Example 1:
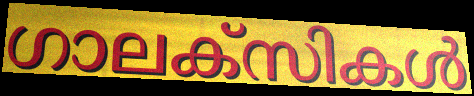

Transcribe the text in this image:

ഗാലക്സികൾ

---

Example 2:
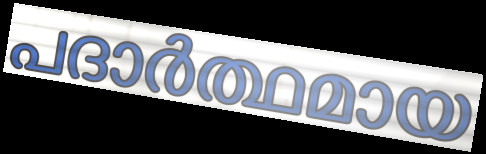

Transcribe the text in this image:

പദാർത്ഥമായ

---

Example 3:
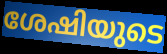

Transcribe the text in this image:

ശേഷിയുടെ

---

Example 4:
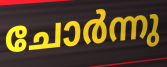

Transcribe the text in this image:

ചോർന്നു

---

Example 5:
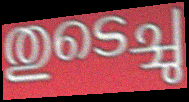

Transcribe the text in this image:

തുടെച്ചു